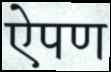
ऐपण